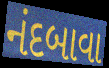
નંદબાવા